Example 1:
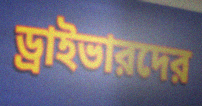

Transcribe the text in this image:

ড্রাইভারদের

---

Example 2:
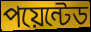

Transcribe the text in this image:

পয়েন্টেড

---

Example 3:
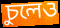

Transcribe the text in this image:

চুলেও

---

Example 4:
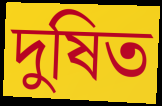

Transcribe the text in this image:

দুষিত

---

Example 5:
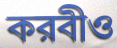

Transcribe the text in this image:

করবীও